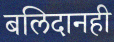
बलिदानही